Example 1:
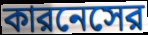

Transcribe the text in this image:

কারনেসের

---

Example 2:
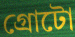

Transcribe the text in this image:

গ্রোটো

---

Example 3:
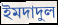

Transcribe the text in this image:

ইমদাদুল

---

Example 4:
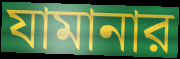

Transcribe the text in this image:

যামানার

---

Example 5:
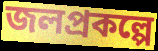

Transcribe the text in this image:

জলপ্রকল্পে